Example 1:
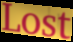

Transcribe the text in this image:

Lost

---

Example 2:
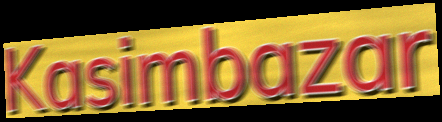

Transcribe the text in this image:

Kasimbazar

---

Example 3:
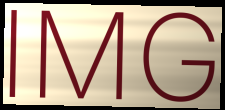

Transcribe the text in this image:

IMG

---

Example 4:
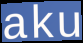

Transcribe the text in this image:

aku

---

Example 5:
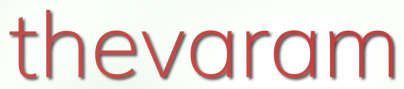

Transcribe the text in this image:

thevaram